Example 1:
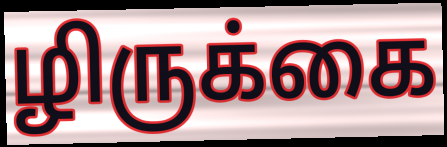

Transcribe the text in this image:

ழிருக்கை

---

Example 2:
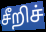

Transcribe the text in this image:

சீறிச்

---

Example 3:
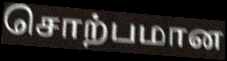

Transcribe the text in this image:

சொற்பமான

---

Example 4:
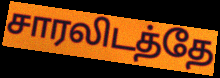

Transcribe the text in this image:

சாரலிடத்தே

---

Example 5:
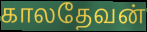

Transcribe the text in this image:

காலதேவன்